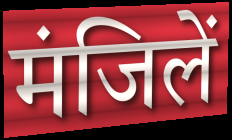
मंजिलें